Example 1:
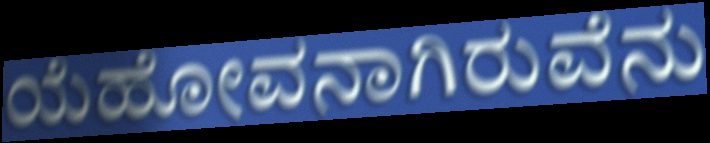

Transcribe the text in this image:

ಯೆಹೋವನಾಗಿರುವೆನು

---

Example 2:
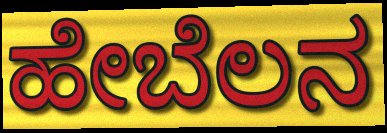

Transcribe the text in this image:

ಹೇಬೆಲನ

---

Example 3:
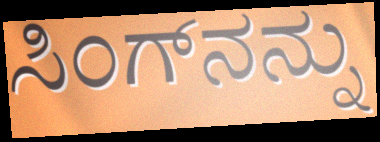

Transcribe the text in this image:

ಸಿಂಗ್‌ನನ್ನು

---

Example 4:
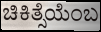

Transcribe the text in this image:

ಚಿಕಿತ್ಸೆಯೆಂಬ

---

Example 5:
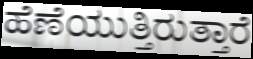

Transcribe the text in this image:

ಹೆಣೆಯುತ್ತಿರುತ್ತಾರೆ